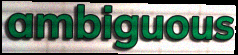
ambiguous